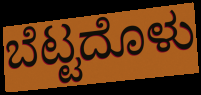
ಬೆಟ್ಟದೊಳು